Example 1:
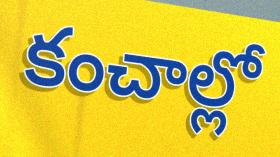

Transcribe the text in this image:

కంచాల్లో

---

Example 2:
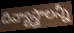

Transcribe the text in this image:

దివ్యాస్త్రాలన్నీ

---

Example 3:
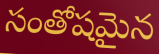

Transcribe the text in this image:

సంతోషమైన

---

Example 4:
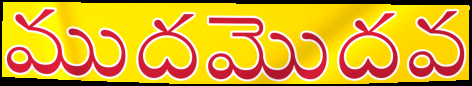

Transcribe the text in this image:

ముదమొదవ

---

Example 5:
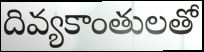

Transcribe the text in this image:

దివ్యకాంతులతో